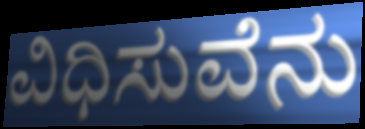
ವಿಧಿಸುವೆನು